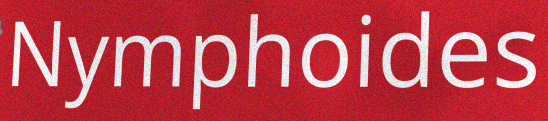
Nymphoides